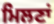
ਮਿਲਣਾਂ